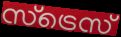
സ്ട്രെസ്